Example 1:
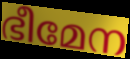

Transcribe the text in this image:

ഭീമേന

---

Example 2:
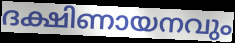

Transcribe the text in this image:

ദക്ഷിണായനവും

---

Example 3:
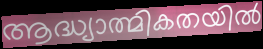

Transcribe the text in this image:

ആദ്ധ്യാത്മികതയിൽ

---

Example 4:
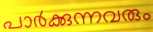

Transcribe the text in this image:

പാർക്കുന്നവരും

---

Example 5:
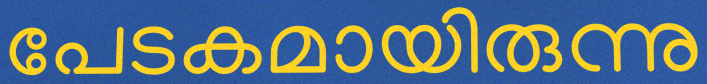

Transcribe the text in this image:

പേടകമായിരുന്നു